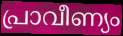
പ്രാവീണ്യം